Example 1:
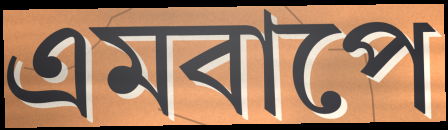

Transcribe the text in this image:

এমবাপে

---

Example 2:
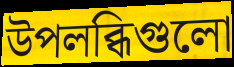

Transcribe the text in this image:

উপলব্ধিগুলো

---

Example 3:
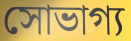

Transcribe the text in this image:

সোভাগ্য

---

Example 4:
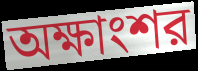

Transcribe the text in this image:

অক্ষাংশর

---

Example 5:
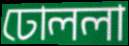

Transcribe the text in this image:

ঢোললা